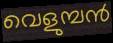
വെളുമ്പൻ